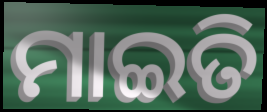
ମାଇତି